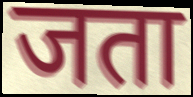
जता